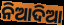
ନିଆଦିଆ